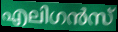
എലിഗൻസ്